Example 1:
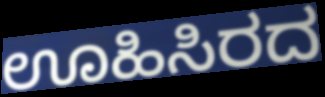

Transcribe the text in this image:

ಊಹಿಸಿರದ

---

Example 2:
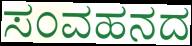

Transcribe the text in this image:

ಸಂವಹನದ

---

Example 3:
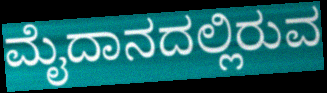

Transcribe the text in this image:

ಮೈದಾನದಲ್ಲಿರುವ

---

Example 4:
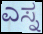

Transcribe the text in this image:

ಎಸ್ನ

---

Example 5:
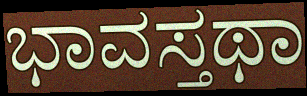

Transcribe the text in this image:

ಭಾವಸ್ತಥಾ